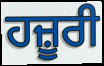
ਹਜ਼ੂਰੀ